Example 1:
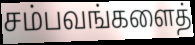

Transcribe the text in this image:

சம்பவங்களைத்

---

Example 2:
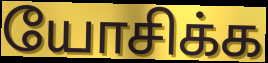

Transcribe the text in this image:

யோசிக்க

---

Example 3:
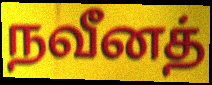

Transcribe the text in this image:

நவீனத்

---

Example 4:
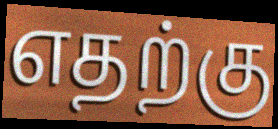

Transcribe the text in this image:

எதற்கு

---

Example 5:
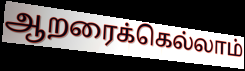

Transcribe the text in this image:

ஆறரைக்கெல்லாம்